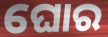
ଘୋର